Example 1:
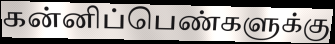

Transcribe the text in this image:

கன்னிப்பெண்களுக்கு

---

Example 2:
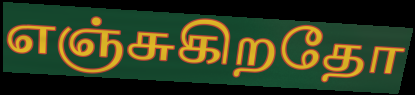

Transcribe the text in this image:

எஞ்சுகிறதோ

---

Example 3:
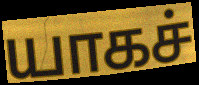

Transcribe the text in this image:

யாகச்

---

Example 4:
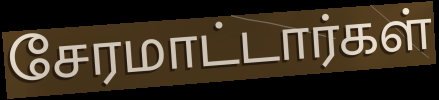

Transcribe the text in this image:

சேரமாட்டார்கள்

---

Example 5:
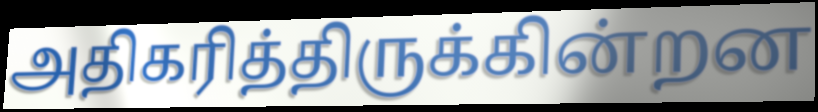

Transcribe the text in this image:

அதிகரித்திருக்கின்றன